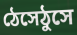
ঠেসেঠুসে